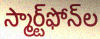
స్మార్ట్‌ఫోన్‌ల